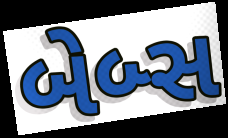
બેબ્સ